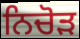
ਨਿਚੋਡ਼